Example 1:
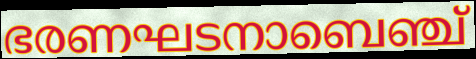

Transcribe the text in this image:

ഭരണഘടനാബെഞ്ച്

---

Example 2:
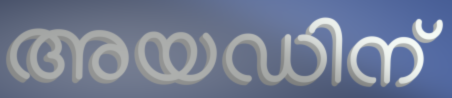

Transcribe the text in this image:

അയഡിന്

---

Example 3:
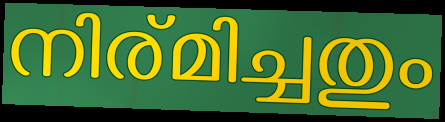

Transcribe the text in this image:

നിര്മിച്ചതും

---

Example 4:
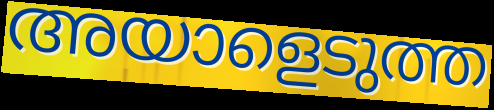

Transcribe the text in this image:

അയാളെടുത്ത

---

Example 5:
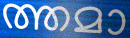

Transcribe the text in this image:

ത്തമാ